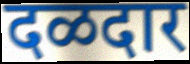
दळदार